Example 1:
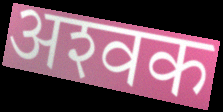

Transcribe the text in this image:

अश्वक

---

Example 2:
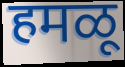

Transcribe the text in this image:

हमळू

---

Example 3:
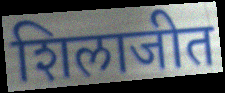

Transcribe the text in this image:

शिलाजीत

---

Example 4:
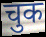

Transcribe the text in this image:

चुक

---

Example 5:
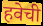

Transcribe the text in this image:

हवेची